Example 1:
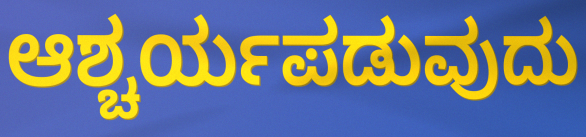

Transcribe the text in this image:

ಆಶ್ಚರ್ಯಪಡುವುದು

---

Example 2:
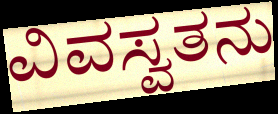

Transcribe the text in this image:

ವಿವಸ್ವತನು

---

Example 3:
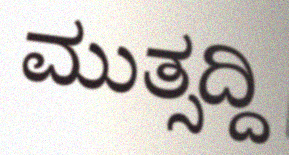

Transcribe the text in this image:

ಮುತ್ಸದ್ದಿ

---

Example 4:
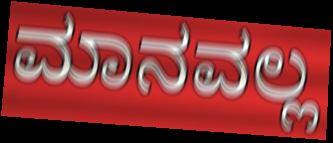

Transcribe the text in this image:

ಮಾನವಲ್ಲ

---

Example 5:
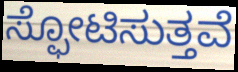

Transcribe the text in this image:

ಸ್ಫೋಟಿಸುತ್ತವೆ